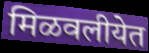
मिळवलीयेत